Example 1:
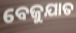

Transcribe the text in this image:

ବେଜୁଯାତ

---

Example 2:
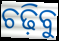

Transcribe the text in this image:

ଚଢ଼ିବୁ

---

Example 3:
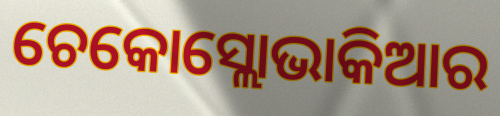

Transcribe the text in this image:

ଚେକୋସ୍ଲୋଭାକିଆର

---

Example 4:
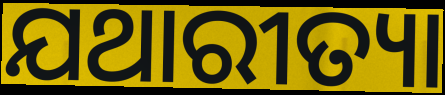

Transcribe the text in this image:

ଯଥାରୀତ୍ୟା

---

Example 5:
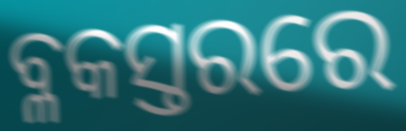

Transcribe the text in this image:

ବ୍ଳକସ୍ତରରେ